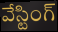
వేస్టింగ్